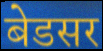
बेडसर